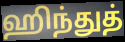
ஹிந்துத்